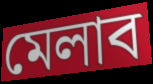
মেলাব